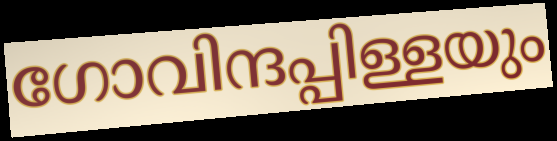
ഗോവിന്ദപ്പിള്ളയും